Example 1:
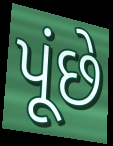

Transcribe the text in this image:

પૂંછે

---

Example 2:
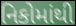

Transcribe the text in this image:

નિકોમાંથી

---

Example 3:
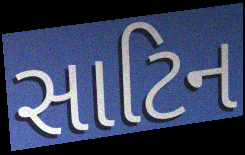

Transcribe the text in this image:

સાટિન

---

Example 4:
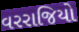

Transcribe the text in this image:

વરરાજિયો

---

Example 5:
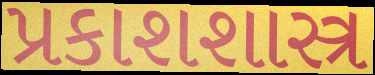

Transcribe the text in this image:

પ્રકાશશાસ્ત્ર